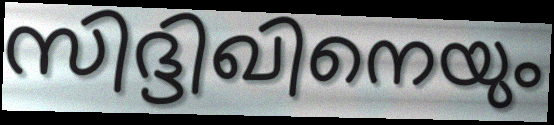
സിദ്ദിഖിനെയും